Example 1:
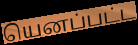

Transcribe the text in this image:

யெனப்பட்ட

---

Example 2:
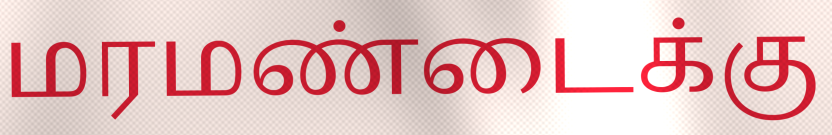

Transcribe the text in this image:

மரமண்டைக்கு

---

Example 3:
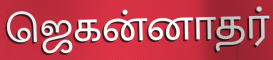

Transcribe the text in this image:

ஜெகன்னாதர்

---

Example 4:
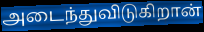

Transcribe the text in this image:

அடைந்துவிடுகிறான்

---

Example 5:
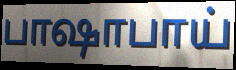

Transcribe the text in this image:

பாஷாபாய்